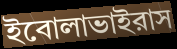
ইবোলাভাইরাস